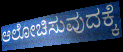
ಆಲೋಚಿಸುವುದಕ್ಕೆ